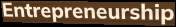
Entrepreneurship